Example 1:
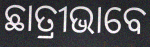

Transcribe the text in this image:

ଛାତ୍ରୀଭାବେ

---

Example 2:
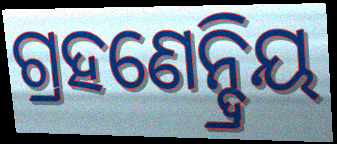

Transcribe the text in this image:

ଗ୍ରହଣେନ୍ଦ୍ରିୟ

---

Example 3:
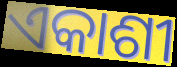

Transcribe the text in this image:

ଏକାଶୀ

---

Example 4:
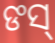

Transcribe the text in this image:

ଙସ୍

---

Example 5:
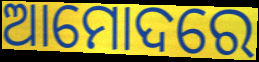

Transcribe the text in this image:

ଆମୋଦରେ